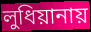
লুধিয়ানায়